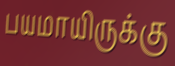
பயமாயிருக்கு